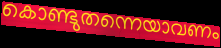
കൊണ്ടുതന്നെയാവണം